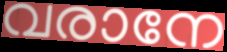
വരാനേ